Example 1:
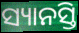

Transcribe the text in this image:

ସ୍ୟାନସ୍ତି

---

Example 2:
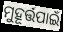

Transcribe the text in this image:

ମୁହୂର୍ତ୍ତପାଇଁ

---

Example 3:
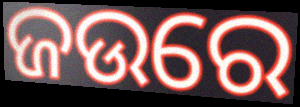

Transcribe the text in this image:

ଜଉରେ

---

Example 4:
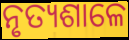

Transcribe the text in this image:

ନୃତ୍ୟଶାଳେ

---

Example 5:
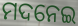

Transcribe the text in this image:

ମଦନେଇ